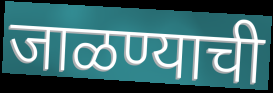
जाळण्याची